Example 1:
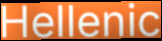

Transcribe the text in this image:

Hellenic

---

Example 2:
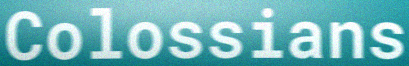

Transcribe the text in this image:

Colossians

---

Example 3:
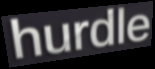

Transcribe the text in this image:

hurdle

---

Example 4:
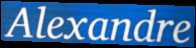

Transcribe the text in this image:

Alexandre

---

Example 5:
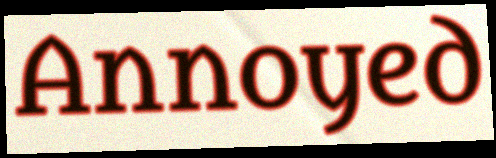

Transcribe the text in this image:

Annoyed